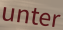
unter